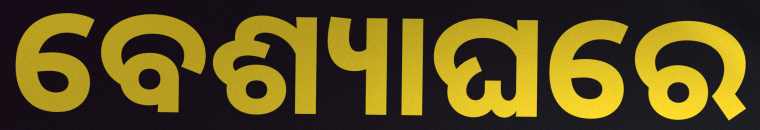
ବେଶ୍ୟାଘରେ